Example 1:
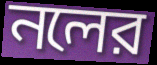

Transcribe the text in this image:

নলের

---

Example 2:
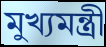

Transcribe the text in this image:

মুখ্যমন্ত্রী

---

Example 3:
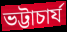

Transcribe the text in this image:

ভট্টাচার্য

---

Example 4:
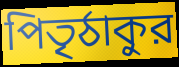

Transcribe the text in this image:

পিতৃঠাকুর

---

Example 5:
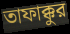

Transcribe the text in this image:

তাফাক্কুর